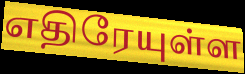
எதிரேயுள்ள